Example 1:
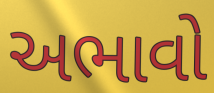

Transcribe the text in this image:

અભાવો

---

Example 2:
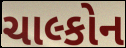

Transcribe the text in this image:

ચાલ્કોન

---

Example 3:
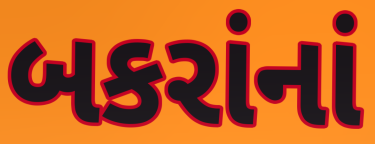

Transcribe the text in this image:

બકરાંનાં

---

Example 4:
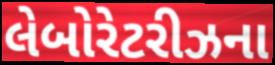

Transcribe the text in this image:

લેબોરેટરીઝના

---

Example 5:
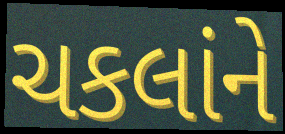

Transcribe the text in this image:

ચકલાંને